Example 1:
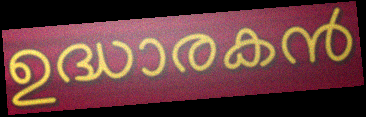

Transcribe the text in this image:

ഉദ്ധാരകൻ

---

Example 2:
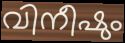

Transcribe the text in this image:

വിനീഷും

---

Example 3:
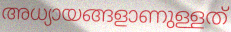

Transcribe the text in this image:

അധ്യായങ്ങളാണുള്ളത്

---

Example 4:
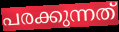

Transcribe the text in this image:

പരക്കുന്നത്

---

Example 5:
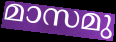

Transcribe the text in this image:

മാസമു